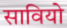
सावियो